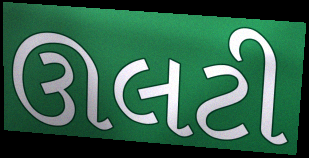
ઊલટી